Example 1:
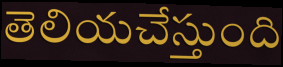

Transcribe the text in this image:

తెలియచేస్తుంది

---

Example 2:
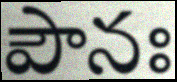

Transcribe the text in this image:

పౌనః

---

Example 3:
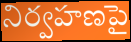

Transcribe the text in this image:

నిర్వహణపై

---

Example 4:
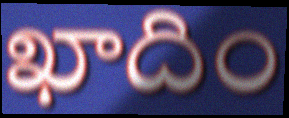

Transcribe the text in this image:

ఖాదిం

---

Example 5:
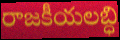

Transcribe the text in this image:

రాజకీయలబ్ధి